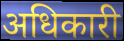
अधिकारी